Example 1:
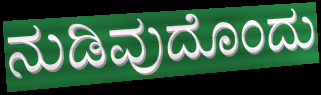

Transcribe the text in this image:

ನುಡಿವುದೊಂದು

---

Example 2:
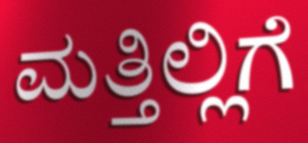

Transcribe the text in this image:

ಮತ್ತಿಲ್ಲಿಗೆ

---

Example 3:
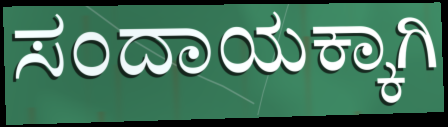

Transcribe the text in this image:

ಸಂದಾಯಕ್ಕಾಗಿ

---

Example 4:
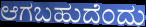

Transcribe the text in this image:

ಆಗಬಹುದೆಂದು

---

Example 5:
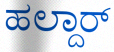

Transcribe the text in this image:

ಹಲ್ದಾರ್